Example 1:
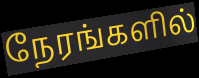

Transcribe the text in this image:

நேரங்களில்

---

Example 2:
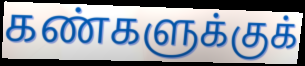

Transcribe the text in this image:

கண்களுக்குக்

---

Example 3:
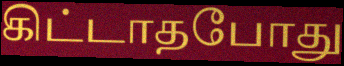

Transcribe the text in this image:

கிட்டாதபோது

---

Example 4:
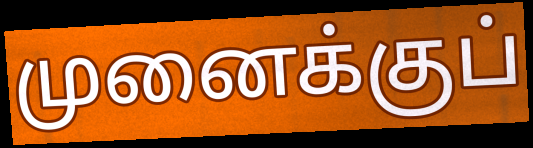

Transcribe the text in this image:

முனைக்குப்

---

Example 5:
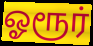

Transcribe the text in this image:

ஓரூர்